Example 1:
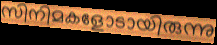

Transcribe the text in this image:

സിനിമകളോടായിരുന്നു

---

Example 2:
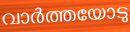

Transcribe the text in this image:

വാർത്തയോടു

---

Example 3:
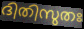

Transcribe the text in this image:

ദിതിസുതഃ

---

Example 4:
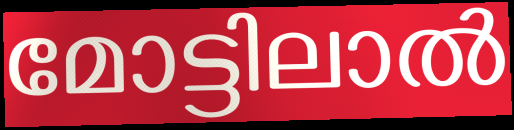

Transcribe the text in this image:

മോട്ടിലാൽ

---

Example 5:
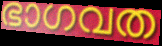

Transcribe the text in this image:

ഭാഗവത